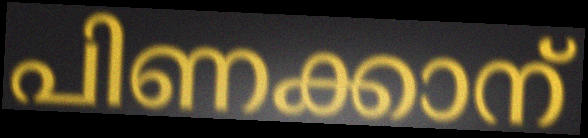
പിണക്കാന്